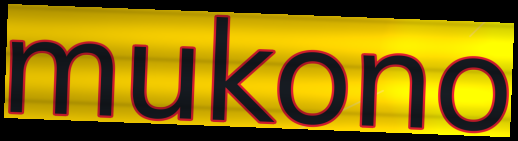
mukono